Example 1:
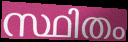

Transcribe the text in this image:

സ്ഥിതം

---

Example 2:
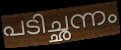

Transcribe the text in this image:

പടിച്ഛന്നം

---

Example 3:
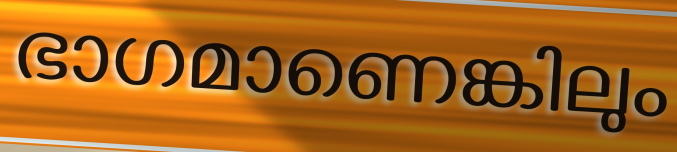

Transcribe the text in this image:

ഭാഗമാണെങ്കിലും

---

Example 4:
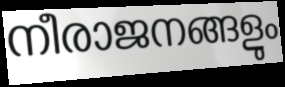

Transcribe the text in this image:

നീരാജനങ്ങളും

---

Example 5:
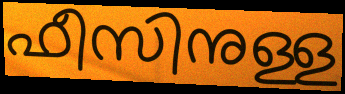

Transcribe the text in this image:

ഫീസിനുള്ള